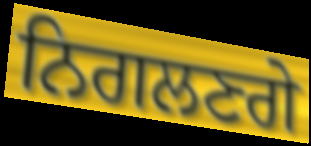
ਨਿਗਲਣਗੇ